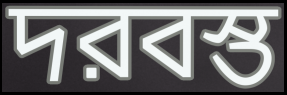
দরবস্ত